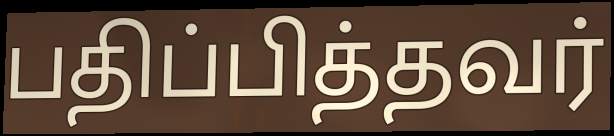
பதிப்பித்தவர்